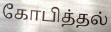
கோபித்தல்